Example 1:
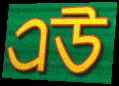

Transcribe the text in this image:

এউ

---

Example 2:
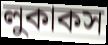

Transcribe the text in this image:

লুকাকস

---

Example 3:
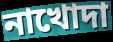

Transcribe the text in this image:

নাখোদা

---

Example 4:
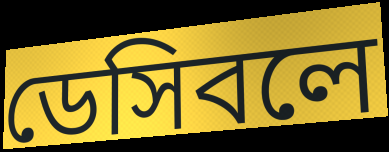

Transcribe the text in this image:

ডেসিবলে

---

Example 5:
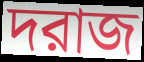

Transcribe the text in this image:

দরাজ